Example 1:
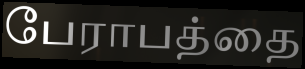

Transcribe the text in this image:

பேராபத்தை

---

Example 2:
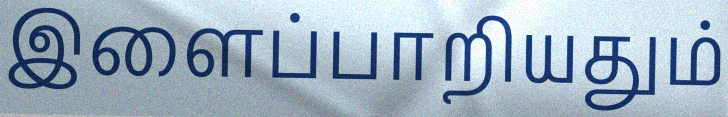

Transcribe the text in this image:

இளைப்பாறியதும்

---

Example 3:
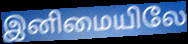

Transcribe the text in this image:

இனிமையிலே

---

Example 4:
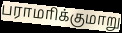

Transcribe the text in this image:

பராமரிக்குமாறு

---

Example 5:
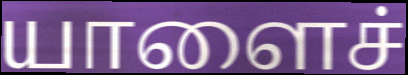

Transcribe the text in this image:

யாளைச்